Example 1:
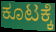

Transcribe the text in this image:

ಕೂಟಕ್ಕೆ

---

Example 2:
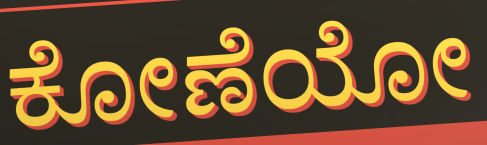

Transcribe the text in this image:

ಕೋಣೆಯೋ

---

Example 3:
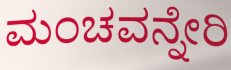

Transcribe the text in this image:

ಮಂಚವನ್ನೇರಿ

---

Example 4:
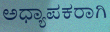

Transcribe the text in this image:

ಅಧ್ಯಾಪಕರಾಗಿ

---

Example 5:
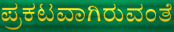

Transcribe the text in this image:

ಪ್ರಕಟವಾಗಿರುವಂತೆ